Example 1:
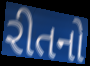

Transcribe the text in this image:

રીતનો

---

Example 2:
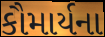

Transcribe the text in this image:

કૌમાર્યના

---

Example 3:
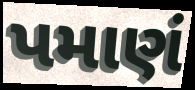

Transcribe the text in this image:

પમાણં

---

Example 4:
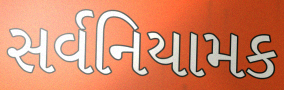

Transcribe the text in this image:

સર્વનિયામક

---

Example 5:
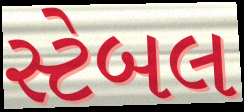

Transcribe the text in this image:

સ્ટેબલ